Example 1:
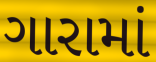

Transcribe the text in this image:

ગારામાં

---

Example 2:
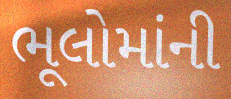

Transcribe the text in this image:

ભૂલોમાંની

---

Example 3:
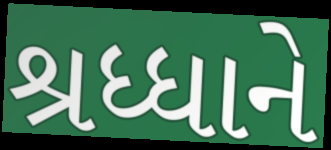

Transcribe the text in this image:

શ્રધ્ધાને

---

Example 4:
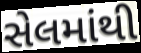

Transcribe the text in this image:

સેલમાંથી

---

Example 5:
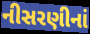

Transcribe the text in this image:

નીસરણીનાં